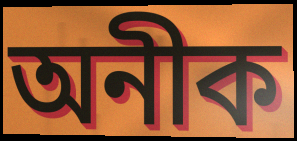
অনীক